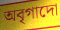
অবৃগাদো